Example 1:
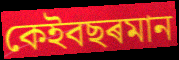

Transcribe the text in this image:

কেইবছৰমান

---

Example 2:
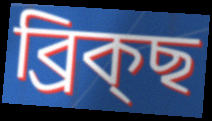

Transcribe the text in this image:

ব্ৰিক্‌ছ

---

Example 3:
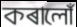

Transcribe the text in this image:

কৰালোঁ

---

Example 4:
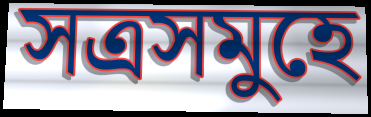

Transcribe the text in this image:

সত্ৰসমুহে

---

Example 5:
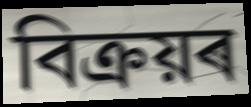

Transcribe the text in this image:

বিক্ৰয়ৰ